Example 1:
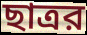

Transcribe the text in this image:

ছাত্রর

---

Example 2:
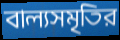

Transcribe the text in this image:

বাল্যসমৃতির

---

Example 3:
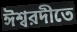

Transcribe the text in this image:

ঈশ্বরদীতে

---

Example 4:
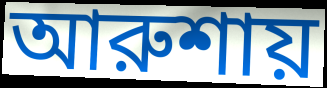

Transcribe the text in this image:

আরুশায়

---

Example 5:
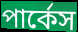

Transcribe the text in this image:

পার্কেস